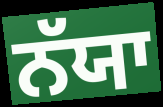
ਨੱਯਾ